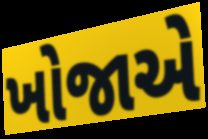
ખોજાએ